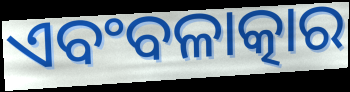
ଏବଂବଳାତ୍କାର